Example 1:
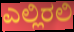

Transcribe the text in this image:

ಎಲ್ಲಿರಲಿ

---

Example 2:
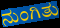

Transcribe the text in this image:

ನುಂಗಿತು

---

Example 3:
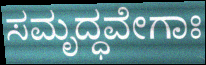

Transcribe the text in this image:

ಸಮೃದ್ಧವೇಗಾಃ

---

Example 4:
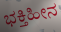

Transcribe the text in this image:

ಭಕ್ತಿಹೀನ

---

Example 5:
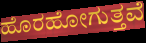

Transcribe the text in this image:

ಹೊರಹೋಗುತ್ತವೆ